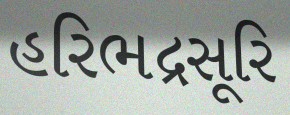
હરિભદ્રસૂરિ